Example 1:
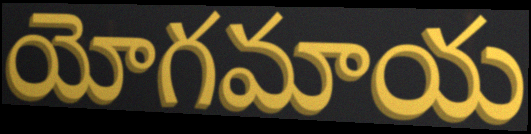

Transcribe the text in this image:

యోగమాయ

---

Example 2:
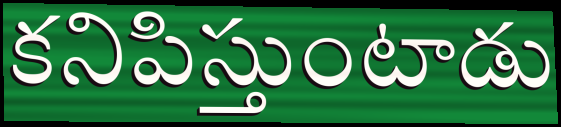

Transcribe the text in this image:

కనిపిస్తుంటాడు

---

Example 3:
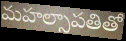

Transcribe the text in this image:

మహల్సాపతితో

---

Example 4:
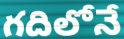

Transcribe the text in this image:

గదిలోనే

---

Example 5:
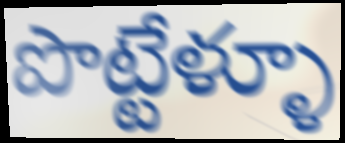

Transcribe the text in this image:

పొట్టేళ్ళూ